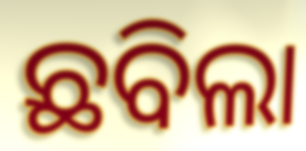
ଛବିଲା